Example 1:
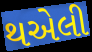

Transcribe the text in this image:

થએલી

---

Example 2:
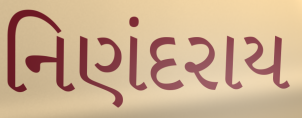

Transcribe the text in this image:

નિણંદરાય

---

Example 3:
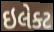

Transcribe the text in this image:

ઇલેક્ટ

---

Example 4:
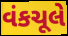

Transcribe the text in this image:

વંકચૂલે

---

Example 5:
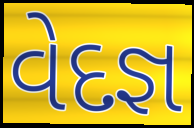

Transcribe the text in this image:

વેદજ્ઞ